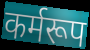
कर्मरूप